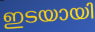
ഇടയായി